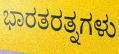
ಭಾರತರತ್ನಗಳು